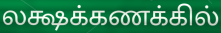
லக்ஷக்கணக்கில்